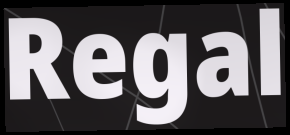
Regal